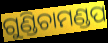
ଗୁଣ୍ଡିଚାମଣ୍ଡପ